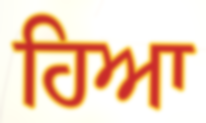
ਹਿਆ